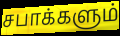
சபாக்களும்